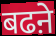
बढऩे